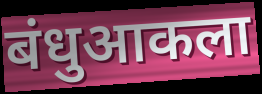
बंधुआकला